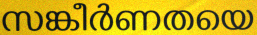
സങ്കീർണതയെ